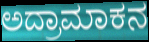
ಅದ್ರಾಮಾಕನ